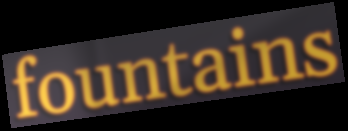
fountains